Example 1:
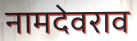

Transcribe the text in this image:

नामदेवराव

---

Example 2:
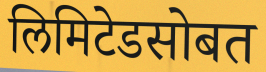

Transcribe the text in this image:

लिमिटेडसोबत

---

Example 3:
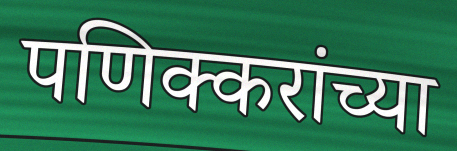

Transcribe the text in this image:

पणिक्करांच्या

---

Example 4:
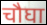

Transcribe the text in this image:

चौघा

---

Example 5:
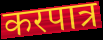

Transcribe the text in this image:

करपात्र